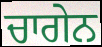
ਚਾਗੇਨ